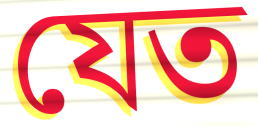
যেত